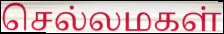
செல்லமகள்